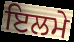
ਇਲਮੇ